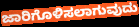
ಜಾರಿಗೊಳಿಸಲಾಗುವುದು